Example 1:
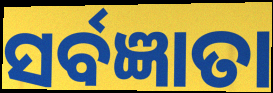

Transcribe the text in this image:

ସର୍ବଜ୍ଞାତା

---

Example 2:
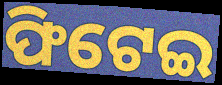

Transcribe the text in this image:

ଫିଟେଇ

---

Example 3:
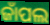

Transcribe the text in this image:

ଜାଁପଲ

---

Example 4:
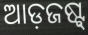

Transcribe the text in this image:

ଆଡ଼ଜଷ୍ଟ୍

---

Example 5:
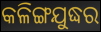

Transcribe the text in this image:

କଳିଙ୍ଗଯୁଦ୍ଧର